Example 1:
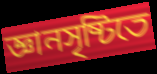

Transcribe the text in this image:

জ্ঞানসৃষ্টিতে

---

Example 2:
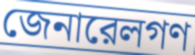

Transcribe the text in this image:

জেনারেলগণ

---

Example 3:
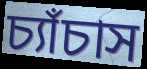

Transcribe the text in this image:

চ্যাঁচাস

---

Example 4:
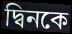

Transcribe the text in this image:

দ্বিনকে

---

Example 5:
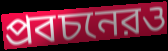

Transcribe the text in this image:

প্রবচনেরও